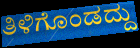
ತಿಳಿಗೊಂಡದ್ದು